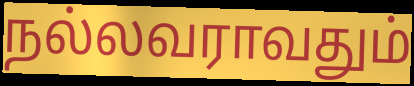
நல்லவராவதும்